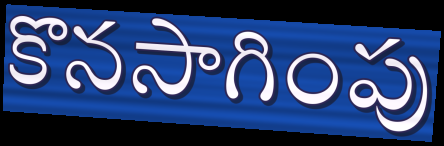
కొనసాగింపు